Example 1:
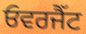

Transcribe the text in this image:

ਓਵਰਜੈੱਟ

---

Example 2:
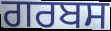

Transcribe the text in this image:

ਗਰਬਸ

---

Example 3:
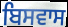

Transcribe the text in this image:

ਬਿਸਵਾਸ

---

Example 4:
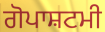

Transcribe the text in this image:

ਗੋਪਾਸ਼ਟਮੀ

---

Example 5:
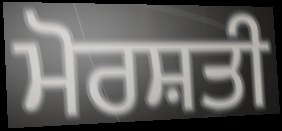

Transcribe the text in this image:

ਮੋਰਸ਼ਤੀ